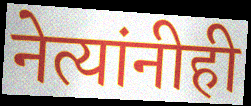
नेत्यांनीही